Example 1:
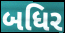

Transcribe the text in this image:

બધિર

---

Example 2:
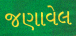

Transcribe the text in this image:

જણાવેલ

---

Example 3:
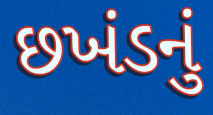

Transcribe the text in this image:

છખંડનું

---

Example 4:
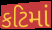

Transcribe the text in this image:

કટિમાં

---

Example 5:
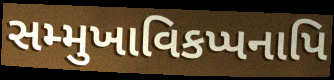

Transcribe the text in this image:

સમ્મુખાવિકપ્પનાપિ